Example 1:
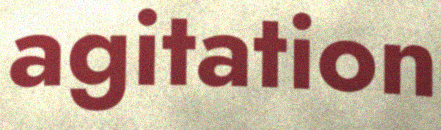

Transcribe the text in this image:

agitation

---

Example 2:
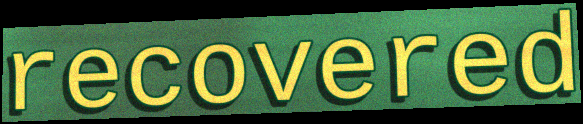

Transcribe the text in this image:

recovered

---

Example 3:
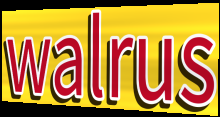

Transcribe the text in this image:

walrus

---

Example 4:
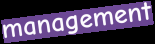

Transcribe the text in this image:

management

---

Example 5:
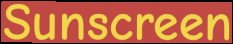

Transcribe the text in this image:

Sunscreen